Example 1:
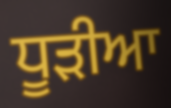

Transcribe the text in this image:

ਧੂੜੀਆ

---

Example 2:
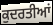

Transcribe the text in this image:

ਕੁਦਰਤੀਆਂ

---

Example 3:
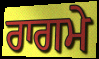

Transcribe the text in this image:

ਰਾਗਮੇ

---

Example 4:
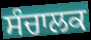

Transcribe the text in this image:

ਸੰਚਾਲਕ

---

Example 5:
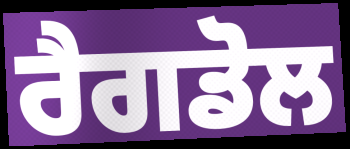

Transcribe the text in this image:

ਰੈਗਡੋਲ